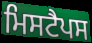
ਮਿਸਟੈਪਸ